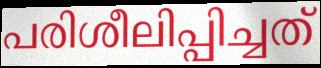
പരിശീലിപ്പിച്ചത്